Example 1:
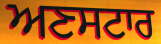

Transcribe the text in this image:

ਅਣਸਟਾਰ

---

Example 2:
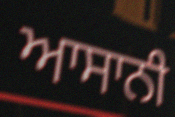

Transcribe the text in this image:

ਆਸਾਨੀ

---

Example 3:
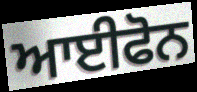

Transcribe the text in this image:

ਆਈਫੋਨ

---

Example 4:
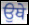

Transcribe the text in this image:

ਉਥੇ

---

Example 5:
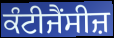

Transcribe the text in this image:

ਕੰਟੀਜੈਂਸੀਜ਼